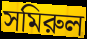
সমিরুল